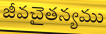
జీవచైతన్యము